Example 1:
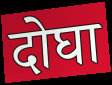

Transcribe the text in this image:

दोघा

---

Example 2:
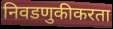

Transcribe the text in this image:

निवडणुकीकरता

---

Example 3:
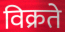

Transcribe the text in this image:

विक्रते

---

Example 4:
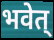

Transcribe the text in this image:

भवेत्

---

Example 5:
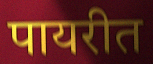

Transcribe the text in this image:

पायरीत